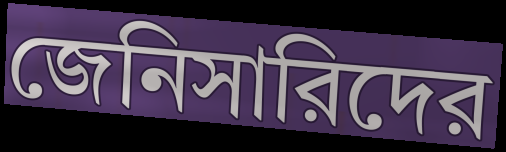
জেনিসারিদের